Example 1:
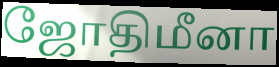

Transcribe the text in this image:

ஜோதிமீனா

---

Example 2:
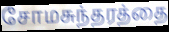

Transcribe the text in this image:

சோமசுந்தரத்தை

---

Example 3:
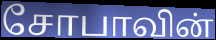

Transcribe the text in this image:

சோபாவின்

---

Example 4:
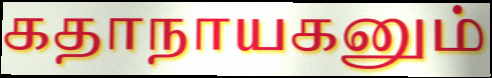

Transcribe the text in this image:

கதாநாயகனும்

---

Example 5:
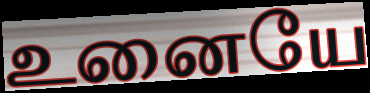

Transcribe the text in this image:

உனையே